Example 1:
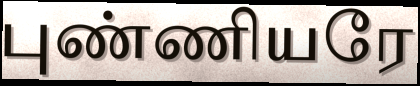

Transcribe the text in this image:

புண்ணியரே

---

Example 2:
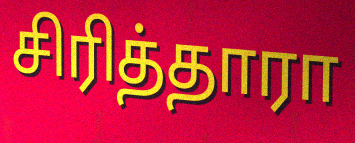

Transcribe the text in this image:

சிரித்தாரா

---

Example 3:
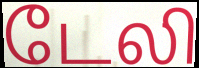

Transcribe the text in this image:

டேலி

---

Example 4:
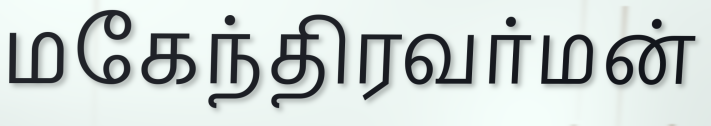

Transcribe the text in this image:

மகேந்திரவர்மன்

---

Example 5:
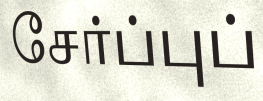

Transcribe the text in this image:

சேர்ப்புப்